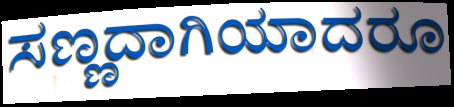
ಸಣ್ಣದಾಗಿಯಾದರೂ